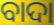
ବାଦା